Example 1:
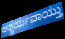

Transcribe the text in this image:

ಆಶ್ಚರ್ಯವಾಯ್ತು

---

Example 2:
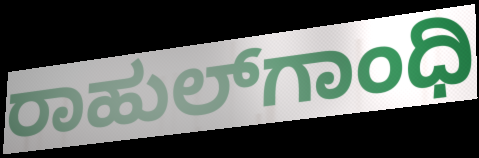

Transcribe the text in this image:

ರಾಹುಲ್‌ಗಾಂಧಿ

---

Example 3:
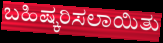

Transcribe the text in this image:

ಬಹಿಷ್ಕರಿಸಲಾಯಿತು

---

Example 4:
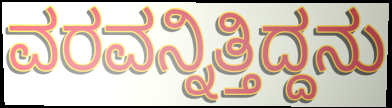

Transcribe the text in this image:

ವರವನ್ನಿತ್ತಿದ್ದನು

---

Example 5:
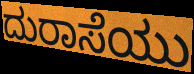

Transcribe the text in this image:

ದುರಾಸೆಯು